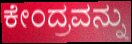
ಕೇಂದ್ರವನ್ನು